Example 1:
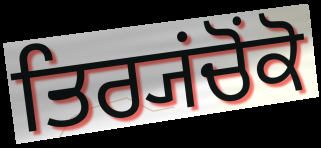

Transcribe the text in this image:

ਤਿਰ੍ਯਂਚੋਂਕੋ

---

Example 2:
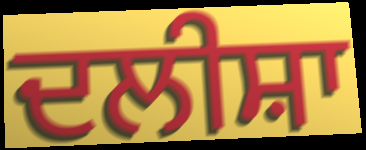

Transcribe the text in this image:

ਦਲੀਸ਼ਾ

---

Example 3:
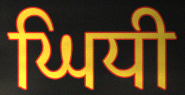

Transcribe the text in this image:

ਘਿਧੀ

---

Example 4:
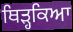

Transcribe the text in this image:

ਥਿੜ੍ਹਕਿਆ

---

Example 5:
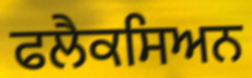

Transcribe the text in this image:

ਫਲੈਕਸਿਅਨ